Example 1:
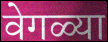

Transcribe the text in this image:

वेगळ्या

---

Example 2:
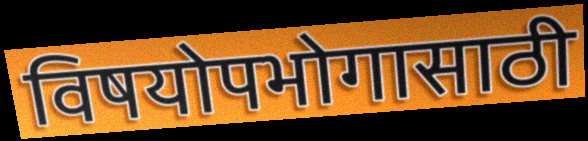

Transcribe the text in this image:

विषयोपभोगासाठी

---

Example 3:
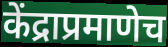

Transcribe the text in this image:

केंद्राप्रमाणेच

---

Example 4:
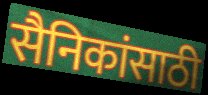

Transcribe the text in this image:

सैनिकांसाठी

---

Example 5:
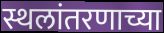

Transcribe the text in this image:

स्थलांतरणाच्या